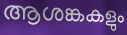
ആശങ്കകളും